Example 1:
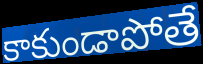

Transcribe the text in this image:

కాకుండాపోతే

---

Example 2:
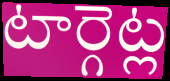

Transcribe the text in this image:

టార్గెట్ల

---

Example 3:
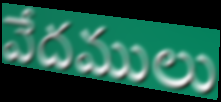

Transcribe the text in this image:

వేదములు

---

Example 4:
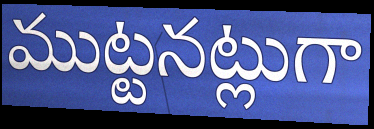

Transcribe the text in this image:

ముట్టనట్లుగా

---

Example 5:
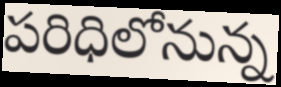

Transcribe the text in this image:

పరిధిలోనున్న